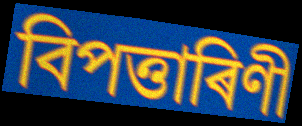
বিপত্তাৰিণী